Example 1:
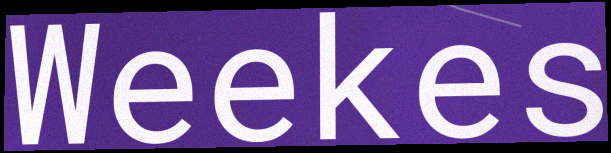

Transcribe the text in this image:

Weekes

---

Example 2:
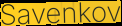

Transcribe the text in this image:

Savenkov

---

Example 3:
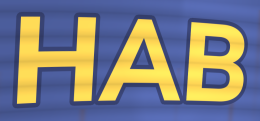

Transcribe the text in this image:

HAB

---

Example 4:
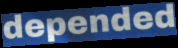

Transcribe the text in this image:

depended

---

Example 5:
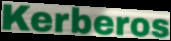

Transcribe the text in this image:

Kerberos